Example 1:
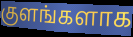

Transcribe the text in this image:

குளங்களாக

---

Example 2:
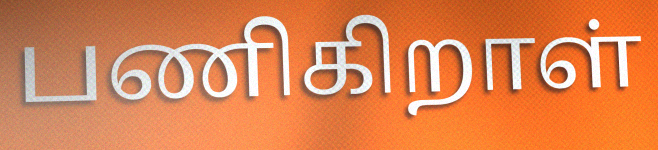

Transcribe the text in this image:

பணிகிறாள்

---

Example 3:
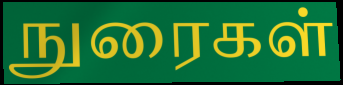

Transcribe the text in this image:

நுரைகள்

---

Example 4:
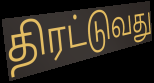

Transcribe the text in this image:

திரட்டுவது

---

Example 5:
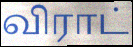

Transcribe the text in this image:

விராட்